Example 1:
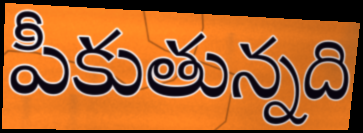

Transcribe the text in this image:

పీకుతున్నది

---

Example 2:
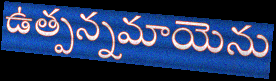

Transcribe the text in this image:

ఉత్పన్నమాయెను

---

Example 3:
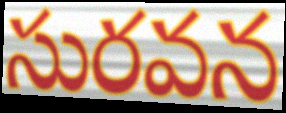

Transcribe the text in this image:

సురవన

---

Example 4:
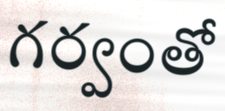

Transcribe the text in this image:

గర్వంతో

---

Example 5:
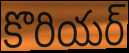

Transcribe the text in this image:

కొరియర్